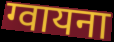
ग्वायना